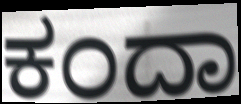
ಕಂದಾ